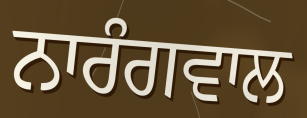
ਨਾਰੰਗਵਾਲ